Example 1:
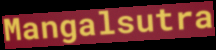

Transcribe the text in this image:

Mangalsutra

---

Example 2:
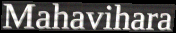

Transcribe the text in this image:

Mahavihara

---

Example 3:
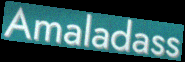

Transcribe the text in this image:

Amaladass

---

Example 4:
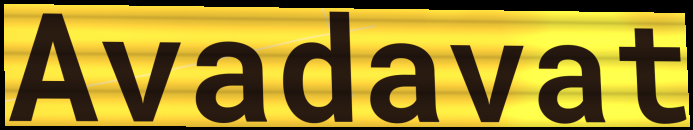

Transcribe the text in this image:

Avadavat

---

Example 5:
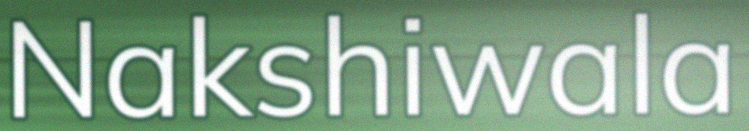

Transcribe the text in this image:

Nakshiwala